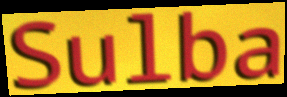
Sulba